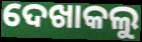
ଦେଖାକଲୁ